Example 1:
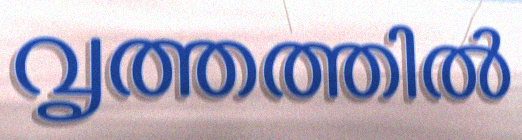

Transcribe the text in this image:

വൃത്തത്തിൽ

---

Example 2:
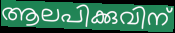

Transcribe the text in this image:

ആലപിക്കുവിന്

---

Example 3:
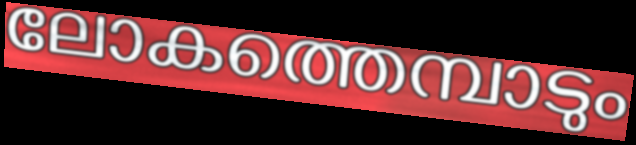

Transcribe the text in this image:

ലോകത്തെമ്പാടും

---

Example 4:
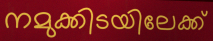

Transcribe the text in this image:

നമുക്കിടയിലേക്ക്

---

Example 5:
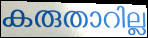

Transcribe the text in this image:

കരുതാറില്ല